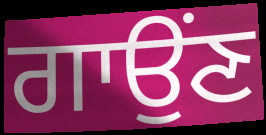
ਗਾਉਂਣ